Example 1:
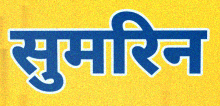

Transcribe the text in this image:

सुमरिन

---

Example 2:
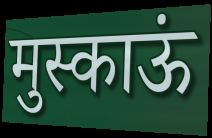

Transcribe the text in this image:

मुस्काऊं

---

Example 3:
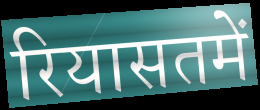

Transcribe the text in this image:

रियासतमें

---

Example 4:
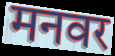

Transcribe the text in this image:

मनवर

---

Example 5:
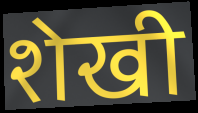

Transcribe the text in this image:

शेखी